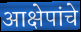
आक्षेपांचे